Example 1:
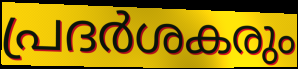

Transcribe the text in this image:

പ്രദർശകരും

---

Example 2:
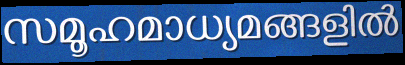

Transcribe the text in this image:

സമൂഹമാധ്യമങ്ങളിൽ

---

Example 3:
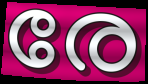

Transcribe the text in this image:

രേ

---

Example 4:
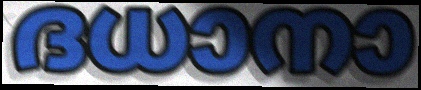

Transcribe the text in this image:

ദധാനാ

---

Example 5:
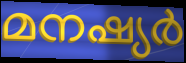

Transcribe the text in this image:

മനഷ്യർ